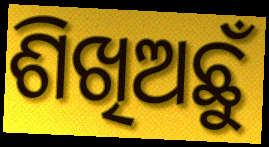
ଶିଖିଅଛୁଁ